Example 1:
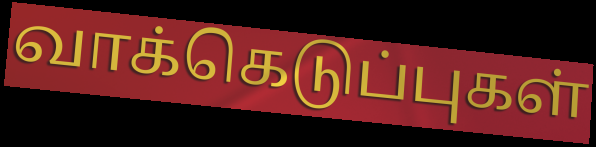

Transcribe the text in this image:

வாக்கெடுப்புகள்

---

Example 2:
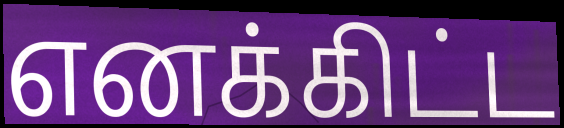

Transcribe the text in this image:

எனக்கிட்ட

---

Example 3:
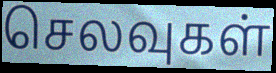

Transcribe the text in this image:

செலவுகள்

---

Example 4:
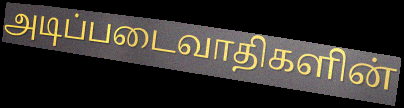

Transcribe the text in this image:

அடிப்படைவாதிகளின்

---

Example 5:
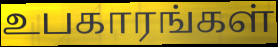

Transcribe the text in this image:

உபகாரங்கள்